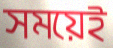
সময়েই